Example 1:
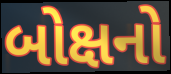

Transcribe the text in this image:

બોક્ષનો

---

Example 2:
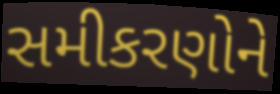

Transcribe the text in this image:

સમીકરણોને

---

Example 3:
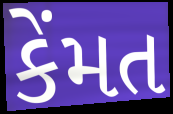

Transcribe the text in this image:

કેંમત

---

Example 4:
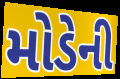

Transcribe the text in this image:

મોડેની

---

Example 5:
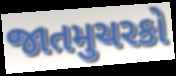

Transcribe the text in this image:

જાતમુચરકો